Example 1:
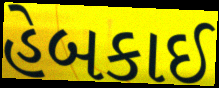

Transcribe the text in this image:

હેબકાઈ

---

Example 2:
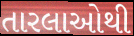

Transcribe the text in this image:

તારલાઓથી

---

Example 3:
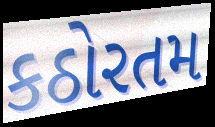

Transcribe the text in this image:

કઠોરતમ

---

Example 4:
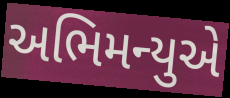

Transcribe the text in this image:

અભિમન્યુએ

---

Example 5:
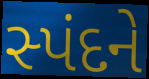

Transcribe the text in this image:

સ્પંદને